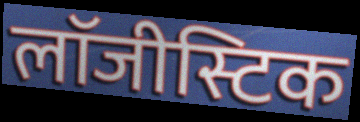
लॉजीस्टिक